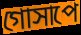
গোসাপে